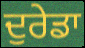
ਦੁਰੇਡਾ